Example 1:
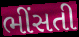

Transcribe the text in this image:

ભીંસતી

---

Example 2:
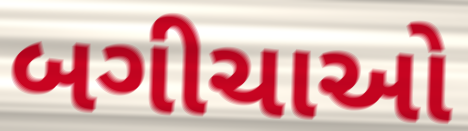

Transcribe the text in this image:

બગીચાઓ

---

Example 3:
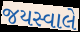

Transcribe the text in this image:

જયસ્વાલે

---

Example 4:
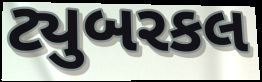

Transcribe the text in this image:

ટ્યુબરકલ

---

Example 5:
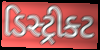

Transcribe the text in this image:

ડિસ્ટ્રીક્ટ